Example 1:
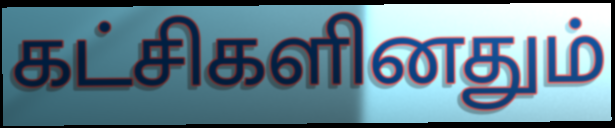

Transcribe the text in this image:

கட்சிகளினதும்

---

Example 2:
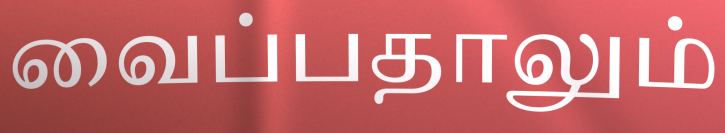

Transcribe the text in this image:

வைப்பதாலும்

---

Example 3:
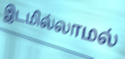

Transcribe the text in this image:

இடமில்லாமல்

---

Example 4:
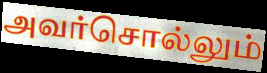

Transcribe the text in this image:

அவர்சொல்லும்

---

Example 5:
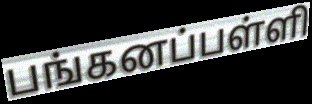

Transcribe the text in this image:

பங்கனப்பள்ளி